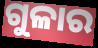
ଗୁଳାର